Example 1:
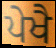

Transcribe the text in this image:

ਪੇਖੈ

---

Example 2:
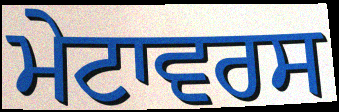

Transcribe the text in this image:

ਮੇਟਾਵਰਸ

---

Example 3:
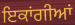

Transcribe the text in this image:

ਇਕਾਂਗੀਆਂ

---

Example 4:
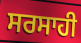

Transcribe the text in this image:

ਸਰਸਾਹੀ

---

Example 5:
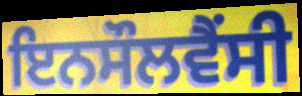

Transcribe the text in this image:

ਇਨਸੌਲਵੈਂਸੀ